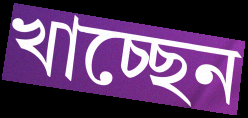
খাচ্ছেন